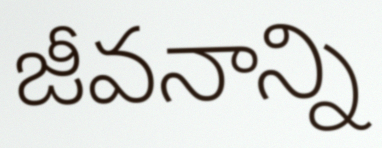
జీవనాన్ని